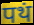
पथं